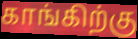
காங்கிற்கு